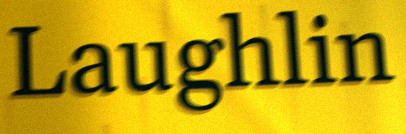
Laughlin